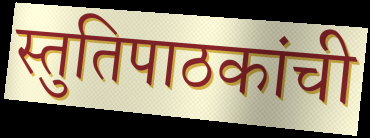
स्तुतिपाठकांची